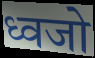
ध्वजो